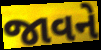
જાવને